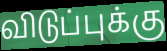
விடுப்புக்கு